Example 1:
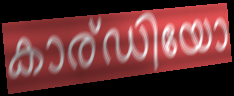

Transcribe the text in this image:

കാര്ഡിയോ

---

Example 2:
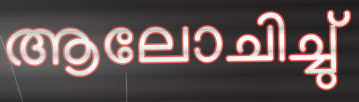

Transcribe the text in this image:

ആലോചിച്ചു്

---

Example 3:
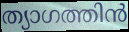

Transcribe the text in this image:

ത്യാഗത്തിൻ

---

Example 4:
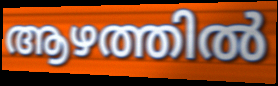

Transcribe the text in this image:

ആഴത്തിൽ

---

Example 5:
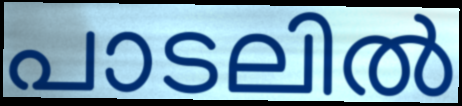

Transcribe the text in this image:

പാടലിൽ